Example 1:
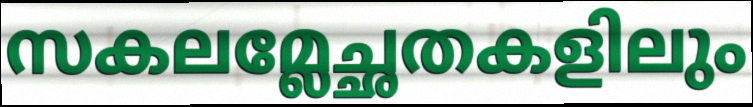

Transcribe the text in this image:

സകലമ്ലേച്ഛതകളിലും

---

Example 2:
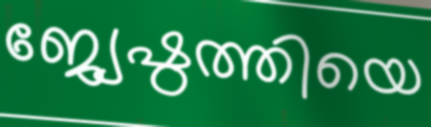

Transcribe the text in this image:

ജ്യേഷ്ഠത്തിയെ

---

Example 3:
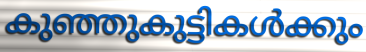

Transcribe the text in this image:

കുഞ്ഞുകുട്ടികൾക്കും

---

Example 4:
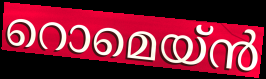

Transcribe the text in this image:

റൊമെയ്ൻ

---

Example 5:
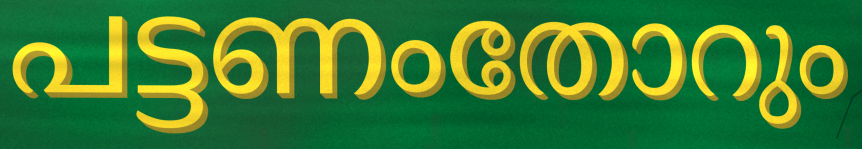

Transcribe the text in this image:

പട്ടണംതോറും